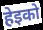
हेइको